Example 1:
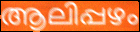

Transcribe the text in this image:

ആലിപ്പഴം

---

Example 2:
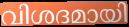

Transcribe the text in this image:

വിശദമായി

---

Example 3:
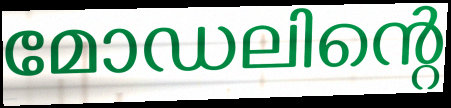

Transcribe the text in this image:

മോഡലിന്റെ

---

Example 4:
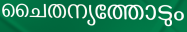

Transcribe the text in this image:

ചൈതന്യത്തോടും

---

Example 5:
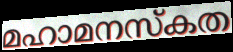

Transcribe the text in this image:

മഹാമനസ്കത